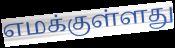
எமக்குள்ளது